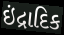
ઇંદ્રાદિક